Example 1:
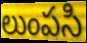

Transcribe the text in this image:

లుంపసి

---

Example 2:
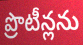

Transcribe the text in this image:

ప్రొటీన్లను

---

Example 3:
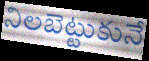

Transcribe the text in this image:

నిలబెట్టుకునే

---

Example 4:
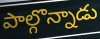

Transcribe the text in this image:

పాల్గొన్నాడు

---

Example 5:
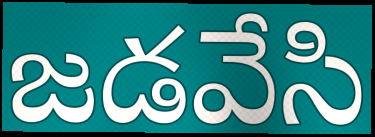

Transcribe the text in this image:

జడవేసి